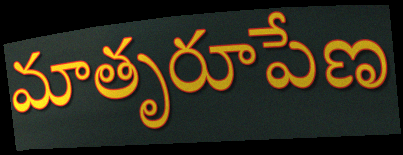
మాతృరూపేణ